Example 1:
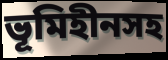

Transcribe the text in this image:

ভূমিহীনসহ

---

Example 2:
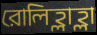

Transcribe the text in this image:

রোলিহ্লাহ্লা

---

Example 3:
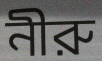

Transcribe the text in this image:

নীরু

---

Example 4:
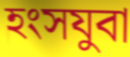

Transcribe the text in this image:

হংসযুবা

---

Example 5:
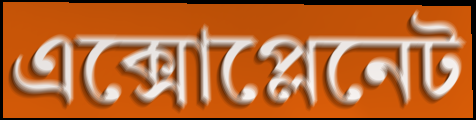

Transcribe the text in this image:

এক্সোপ্লেনেট